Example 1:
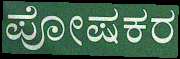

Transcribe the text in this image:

ಪೋಷಕರ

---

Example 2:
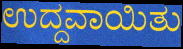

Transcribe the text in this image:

ಉದ್ದವಾಯಿತು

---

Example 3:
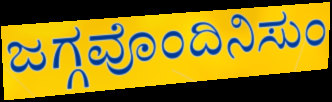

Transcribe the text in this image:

ಜಗ್ಗವೊಂದಿನಿಸುಂ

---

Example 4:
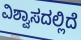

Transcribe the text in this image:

ವಿಶ್ವಾಸದಲ್ಲಿದೆ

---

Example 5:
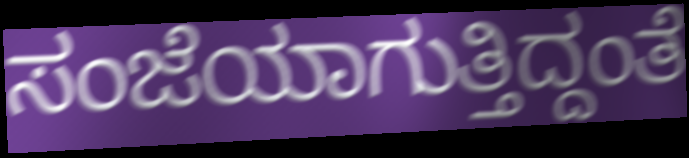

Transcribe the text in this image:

ಸಂಜೆಯಾಗುತ್ತಿದ್ದಂತೆ